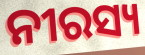
ନୀରସ୍ୟ